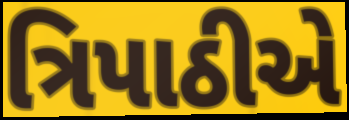
ત્રિપાઠીએ